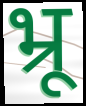
भ्रू